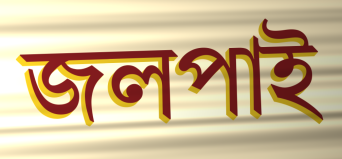
জলপাই